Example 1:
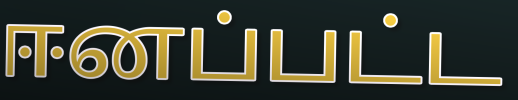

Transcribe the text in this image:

ஈனப்பட்ட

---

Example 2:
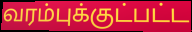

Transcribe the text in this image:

வரம்புக்குட்பட்ட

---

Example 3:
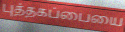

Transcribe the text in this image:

புத்தகப்பையை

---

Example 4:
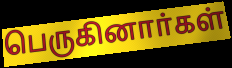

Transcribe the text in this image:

பெருகினார்கள்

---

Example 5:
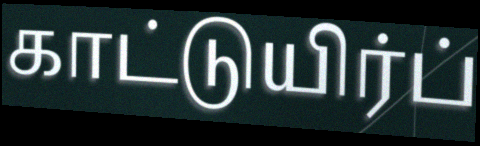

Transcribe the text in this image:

காட்டுயிர்ப்